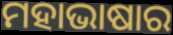
ମହାଭାଷାର